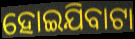
ହୋଇଯିବାଟା